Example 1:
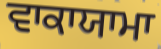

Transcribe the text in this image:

ਵਾਕਾਯਾਮਾ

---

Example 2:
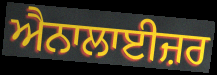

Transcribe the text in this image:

ਐਨਾਲਾਈਜ਼ਰ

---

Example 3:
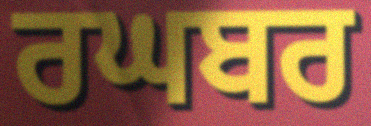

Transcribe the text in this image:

ਰਘਬਰ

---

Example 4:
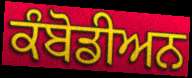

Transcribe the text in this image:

ਕੰਬੋਡੀਅਨ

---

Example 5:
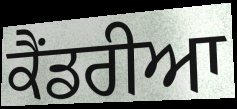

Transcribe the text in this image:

ਕੈਂਡਰੀਆ